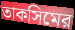
তাকসিমের